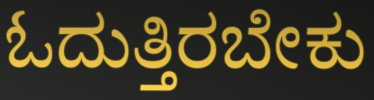
ಓದುತ್ತಿರಬೇಕು